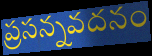
ప్రసన్నవదనం